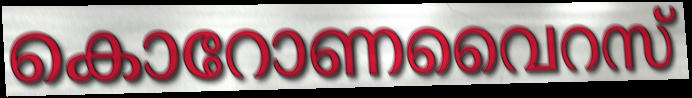
കൊറോണവൈറസ്